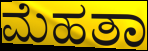
ಮೆಹತಾ